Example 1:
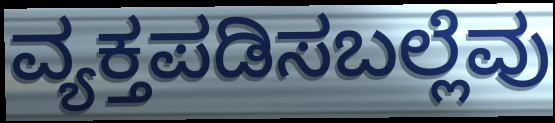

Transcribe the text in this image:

ವ್ಯಕ್ತಪಡಿಸಬಲ್ಲೆವು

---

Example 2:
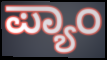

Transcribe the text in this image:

ಪ್ಯಾಂ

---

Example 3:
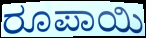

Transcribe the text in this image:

ರೂಪಾಯಿ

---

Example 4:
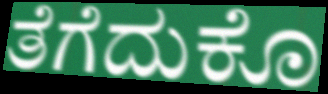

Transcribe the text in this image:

ತೆಗೆದುಕೊ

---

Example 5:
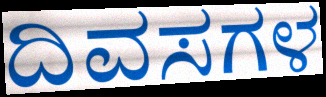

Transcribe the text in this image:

ದಿವಸಗಳ